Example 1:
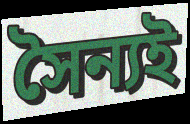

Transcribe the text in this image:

সৈন্যই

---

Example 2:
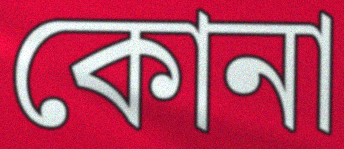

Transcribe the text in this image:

কোনা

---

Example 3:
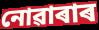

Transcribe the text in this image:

নোৱাৰাৰ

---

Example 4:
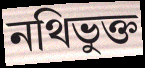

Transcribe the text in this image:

নথিভুক্ত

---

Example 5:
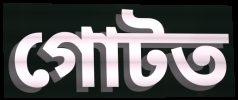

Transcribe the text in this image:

গোটত